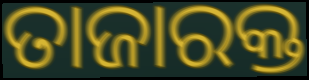
ତାଜାରକ୍ତ